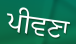
ਪੀਵਣਾ